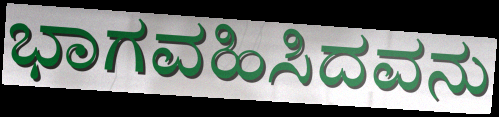
ಭಾಗವಹಿಸಿದವನು